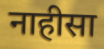
नाहीसा